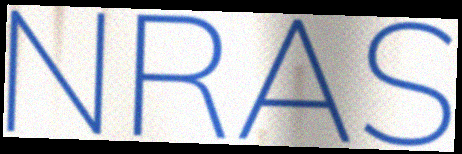
NRAS